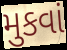
મુકવાં